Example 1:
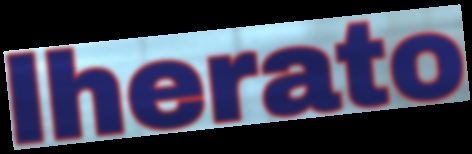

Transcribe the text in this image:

lherato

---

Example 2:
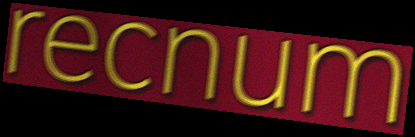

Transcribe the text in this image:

recnum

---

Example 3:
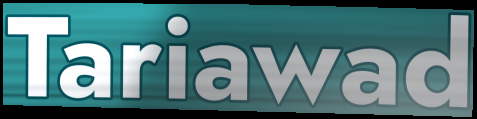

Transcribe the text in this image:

Tariawad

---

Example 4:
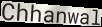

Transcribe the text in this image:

Chhanwal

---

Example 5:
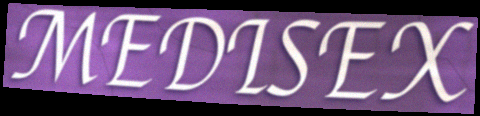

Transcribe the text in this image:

MEDISEX